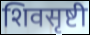
शिवसृष्टी